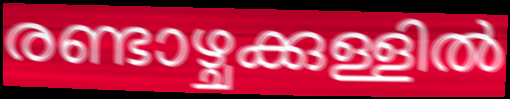
രണ്ടാഴ്ചക്കുള്ളിൽ